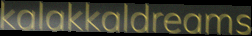
kalakkaldreams